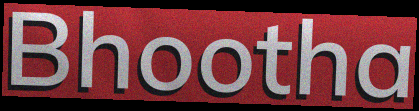
Bhootha